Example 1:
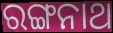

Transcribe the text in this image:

ରଙ୍ଗନାଥ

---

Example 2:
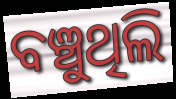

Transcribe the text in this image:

ବଞ୍ଚୁଥିଲି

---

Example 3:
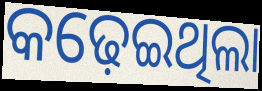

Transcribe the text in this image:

କଢ଼େଇଥିଲା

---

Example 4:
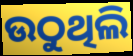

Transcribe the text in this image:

ଉଠୁଥିଲି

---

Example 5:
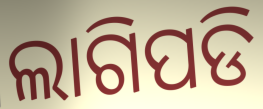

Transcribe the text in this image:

ଲାଗିପଡି